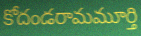
కోదండరామమూర్తి